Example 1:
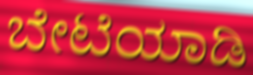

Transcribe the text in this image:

ಬೇಟೆಯಾಡಿ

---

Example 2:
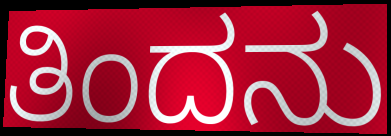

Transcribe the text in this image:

ತಿಂದನು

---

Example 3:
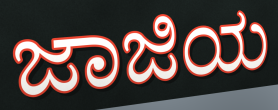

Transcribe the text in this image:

ಜಾಜಿಯ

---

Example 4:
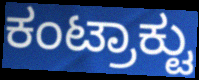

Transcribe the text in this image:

ಕಂಟ್ರಾಕ್ಟು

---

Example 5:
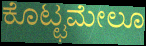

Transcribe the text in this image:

ಕೊಟ್ಟಮೇಲೂ